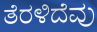
ತೆರಳಿದೆವು